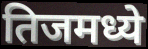
तिजमध्ये